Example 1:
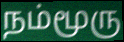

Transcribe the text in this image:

நம்மூரு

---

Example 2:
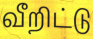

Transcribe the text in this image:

வீறிட்டு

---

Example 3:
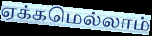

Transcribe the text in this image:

ஏக்கமெல்லாம்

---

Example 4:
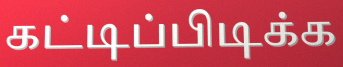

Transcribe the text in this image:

கட்டிப்பிடிக்க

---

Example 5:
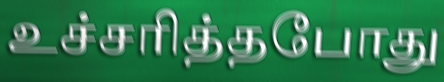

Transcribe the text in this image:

உச்சரித்தபோது